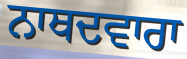
ਨਾਥਦਵਾਰਾ